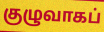
குழுவாகப்